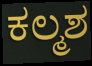
ಕಲ್ಮಶ